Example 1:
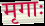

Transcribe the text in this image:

मृगाः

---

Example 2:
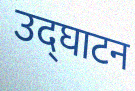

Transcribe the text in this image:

उद्घाटन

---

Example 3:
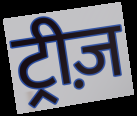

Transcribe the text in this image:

ट्रीज़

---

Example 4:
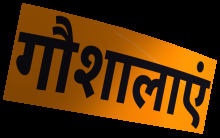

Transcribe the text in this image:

गौशालाएं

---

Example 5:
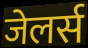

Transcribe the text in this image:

जेलर्स